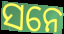
ସନେ